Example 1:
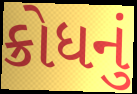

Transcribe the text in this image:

ક્રોધનું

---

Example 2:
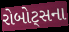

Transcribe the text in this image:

રોબોટ્સના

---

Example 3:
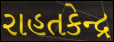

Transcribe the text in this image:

રાહતકેન્દ્ર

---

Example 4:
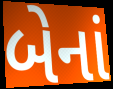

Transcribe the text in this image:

બેનાં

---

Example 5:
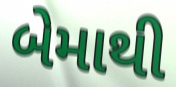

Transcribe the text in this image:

બેમાથી